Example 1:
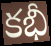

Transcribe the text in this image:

కభీ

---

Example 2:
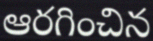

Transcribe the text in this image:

ఆరగించిన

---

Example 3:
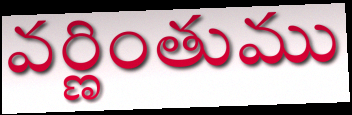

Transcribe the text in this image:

వర్ణింతుము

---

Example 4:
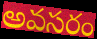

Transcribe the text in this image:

అవసరం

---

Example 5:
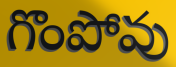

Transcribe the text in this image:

గొంపోవు